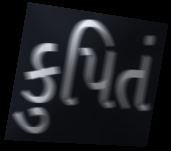
કુપિતં